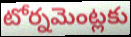
టోర్నమెంట్లకు